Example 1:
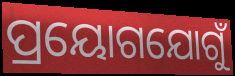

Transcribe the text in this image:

ପ୍ରୟୋଗଯୋଗୁଁ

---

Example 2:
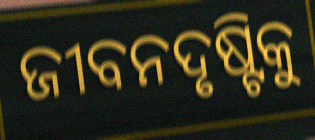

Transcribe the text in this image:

ଜୀବନଦୃଷ୍ଟିକୁ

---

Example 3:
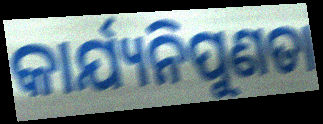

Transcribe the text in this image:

କାର୍ଯ୍ୟନିପୁଣତା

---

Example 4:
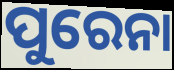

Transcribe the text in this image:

ପୁରେନା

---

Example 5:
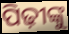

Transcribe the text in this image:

ପିଢ଼ୀଙ୍କୁ